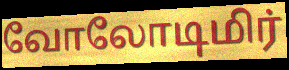
வோலோடிமிர்